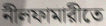
নীলফামারীতে